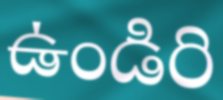
ఉండిరి